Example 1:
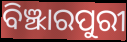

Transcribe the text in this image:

ବିଞ୍ଝାରପୁରୀ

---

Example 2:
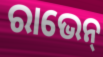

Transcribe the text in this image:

ରାଭେନ୍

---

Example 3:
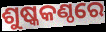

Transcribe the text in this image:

ଶୁଷ୍କକଣ୍ଠରେ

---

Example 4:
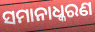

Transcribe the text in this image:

ସମାନାଧ୍କରଣ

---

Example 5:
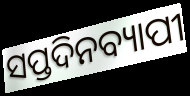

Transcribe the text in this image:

ସପ୍ତଦିନବ୍ୟାପୀ